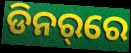
ଡିନର୍‌ରେ